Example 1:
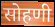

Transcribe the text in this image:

सोहणी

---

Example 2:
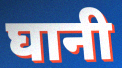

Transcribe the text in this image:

घानी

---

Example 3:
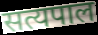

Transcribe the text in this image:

सत्यपाल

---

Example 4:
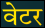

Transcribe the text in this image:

वेटर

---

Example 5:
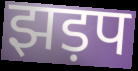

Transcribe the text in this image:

झड़प